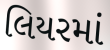
લિયરમાં